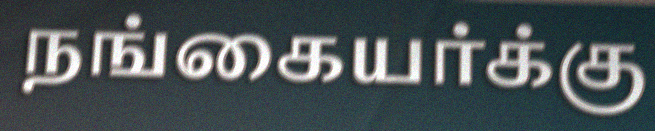
நங்கையர்க்கு